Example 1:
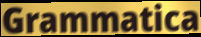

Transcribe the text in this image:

Grammatica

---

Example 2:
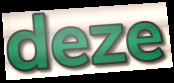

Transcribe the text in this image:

deze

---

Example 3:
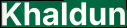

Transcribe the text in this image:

Khaldun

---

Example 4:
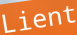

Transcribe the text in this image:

Lient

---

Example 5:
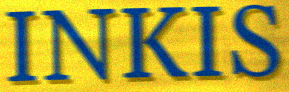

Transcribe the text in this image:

INKIS